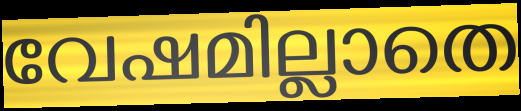
വേഷമില്ലാതെ